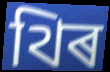
থিৰ